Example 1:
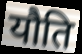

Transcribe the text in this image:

यौति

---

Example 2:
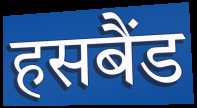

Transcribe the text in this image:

हसबैंड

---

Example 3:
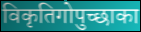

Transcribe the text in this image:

विकृतिगोपुच्छाका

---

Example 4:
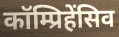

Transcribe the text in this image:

कॉम्प्रिहेंसिव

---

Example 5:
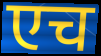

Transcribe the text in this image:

एच